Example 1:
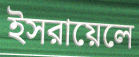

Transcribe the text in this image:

ইসরায়েলে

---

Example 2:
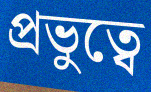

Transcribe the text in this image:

প্রভুত্বে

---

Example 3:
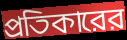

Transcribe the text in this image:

প্রতিকারের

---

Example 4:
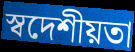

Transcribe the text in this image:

স্বদেশীয়তা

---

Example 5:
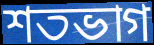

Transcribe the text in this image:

শতভাগ